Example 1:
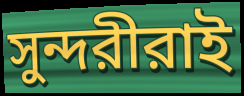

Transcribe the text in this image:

সুন্দরীরাই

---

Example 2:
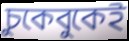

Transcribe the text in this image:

চুকেবুকেই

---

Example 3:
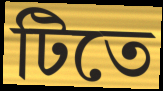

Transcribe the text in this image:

টিতে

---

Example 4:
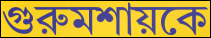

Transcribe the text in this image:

গুরুমশায়কে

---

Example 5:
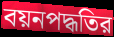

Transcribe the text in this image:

বয়নপদ্ধতির